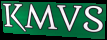
KMVS